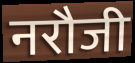
नरौजी